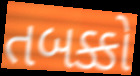
તબક્કો